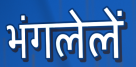
भंगलेलें